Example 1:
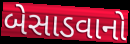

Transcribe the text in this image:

બેસાડવાનો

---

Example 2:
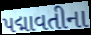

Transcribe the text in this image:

પદ્માવતીના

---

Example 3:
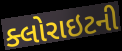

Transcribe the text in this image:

ક્લોરાઇટની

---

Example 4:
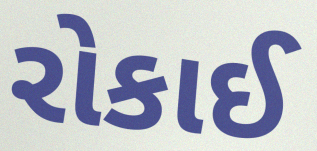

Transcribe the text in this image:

રોકાઈ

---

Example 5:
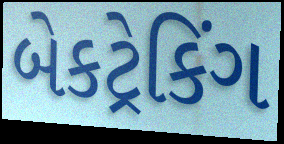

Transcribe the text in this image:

બેકટ્રેકિંગ